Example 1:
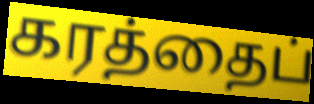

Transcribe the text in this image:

கரத்தைப்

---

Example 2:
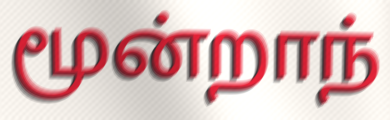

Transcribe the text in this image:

மூன்றாந்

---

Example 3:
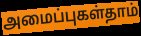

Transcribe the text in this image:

அமைப்புகள்தாம்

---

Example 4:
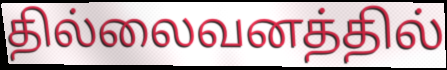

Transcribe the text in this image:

தில்லைவனத்தில்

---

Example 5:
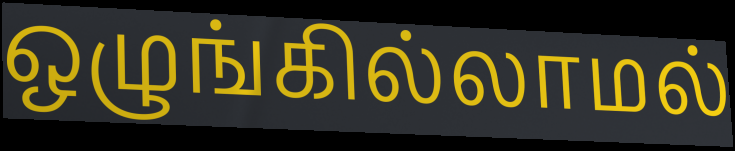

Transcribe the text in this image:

ஒழுங்கில்லாமல்